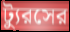
ট্যুরসের